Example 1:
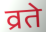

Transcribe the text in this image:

व्रते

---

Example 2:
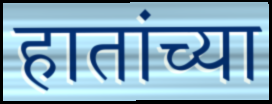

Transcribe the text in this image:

हातांच्या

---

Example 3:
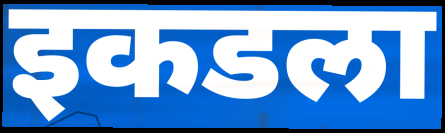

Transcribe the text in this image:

इकडला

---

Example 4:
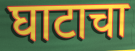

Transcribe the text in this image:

घाटाचा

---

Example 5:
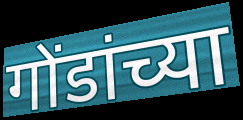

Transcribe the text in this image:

गोंडांच्या